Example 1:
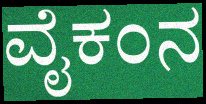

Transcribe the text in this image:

ವೈಕಂನ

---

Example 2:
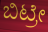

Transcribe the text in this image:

ಬಿಟ್ರೇ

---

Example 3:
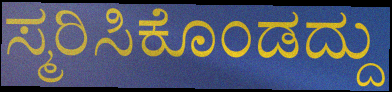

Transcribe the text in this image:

ಸ್ಮರಿಸಿಕೊಂಡದ್ದು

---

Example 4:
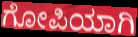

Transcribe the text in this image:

ಗೋಪಿಯಾಗಿ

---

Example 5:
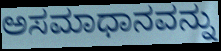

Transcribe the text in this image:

ಅಸಮಾಧಾನವನ್ನು